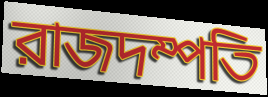
রাজদম্পতি